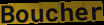
Boucher